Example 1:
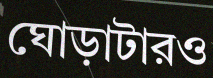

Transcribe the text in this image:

ঘোড়াটারও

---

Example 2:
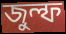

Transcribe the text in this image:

জুল্ফ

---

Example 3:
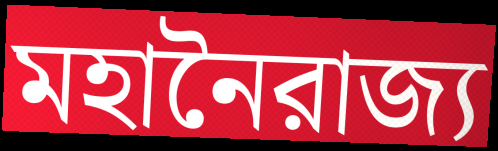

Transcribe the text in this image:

মহানৈরাজ্য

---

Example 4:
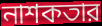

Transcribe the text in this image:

নাশকতার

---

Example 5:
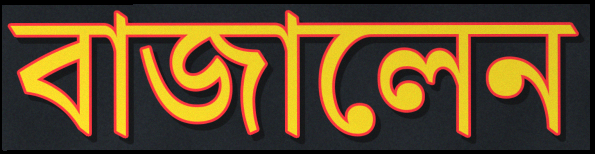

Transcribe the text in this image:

বাজালেন